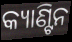
କ୍ୟାଣ୍ଟିନ